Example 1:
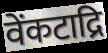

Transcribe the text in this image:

वेंकटाद्रि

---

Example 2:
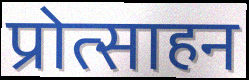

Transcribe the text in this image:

प्रोत्‍साहन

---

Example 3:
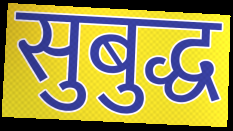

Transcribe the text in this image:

सुबुद्ध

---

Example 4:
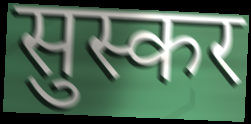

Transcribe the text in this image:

सुस्कर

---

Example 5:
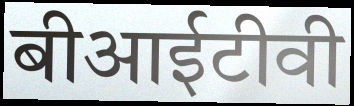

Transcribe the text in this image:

बीआईटीवी